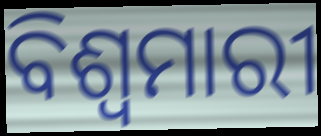
ବିଶ୍ୱମାରୀ